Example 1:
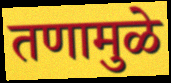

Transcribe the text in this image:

तणामुळे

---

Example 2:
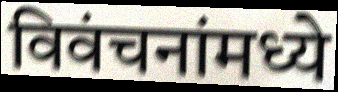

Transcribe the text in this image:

विवंचनांमध्ये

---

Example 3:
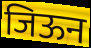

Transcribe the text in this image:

जिऊन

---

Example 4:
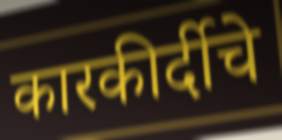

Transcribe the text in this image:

कारकीर्दीचे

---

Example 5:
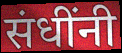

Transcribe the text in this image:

संधींनी